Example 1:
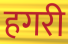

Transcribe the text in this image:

हगरी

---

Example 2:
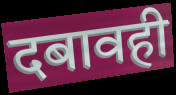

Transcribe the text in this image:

दबावही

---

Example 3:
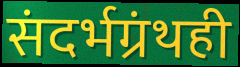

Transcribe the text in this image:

संदर्भग्रंथही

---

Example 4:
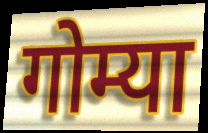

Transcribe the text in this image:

गोम्या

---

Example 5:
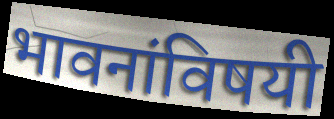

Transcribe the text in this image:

भावनांविषयी